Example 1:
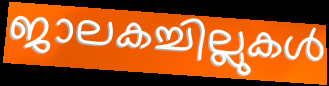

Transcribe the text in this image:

ജാലകച്ചില്ലുകൾ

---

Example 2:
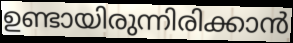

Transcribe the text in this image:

ഉണ്ടായിരുന്നിരിക്കാൻ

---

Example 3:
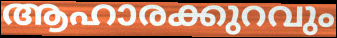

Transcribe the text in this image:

ആഹാരക്കുറവും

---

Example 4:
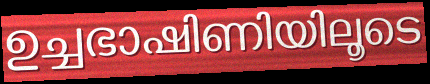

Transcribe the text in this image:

ഉച്ചഭാഷിണിയിലൂടെ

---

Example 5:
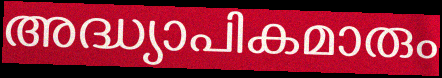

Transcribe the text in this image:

അദ്ധ്യാപികമാരും